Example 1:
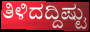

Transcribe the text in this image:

ತಿಳಿದದ್ದಿಷ್ಟು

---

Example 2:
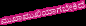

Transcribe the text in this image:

ಮುಖಾಮುಖಿಯಾಗಬೇಕಿದೆ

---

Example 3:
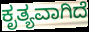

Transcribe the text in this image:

ಕೃತ್ಯವಾಗಿದೆ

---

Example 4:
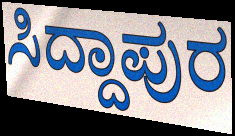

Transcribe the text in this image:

ಸಿದ್ದಾಪುರ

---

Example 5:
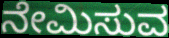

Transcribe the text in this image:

ನೇಮಿಸುವ